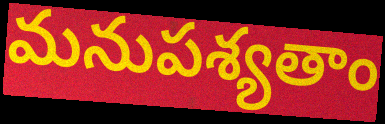
మనుపశ్యతాం